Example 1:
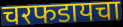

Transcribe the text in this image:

चरफडायचा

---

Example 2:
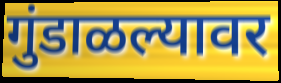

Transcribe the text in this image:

गुंडाळल्यावर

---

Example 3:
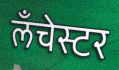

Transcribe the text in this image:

लँचेस्टर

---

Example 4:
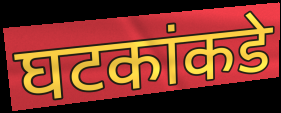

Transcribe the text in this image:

घटकांकडे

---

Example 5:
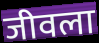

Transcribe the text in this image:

जीवला